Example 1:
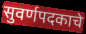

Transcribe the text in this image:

सुवर्णपदकाचे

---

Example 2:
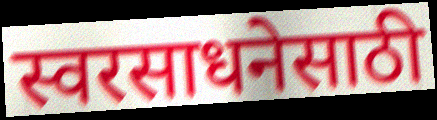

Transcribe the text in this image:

स्वरसाधनेसाठी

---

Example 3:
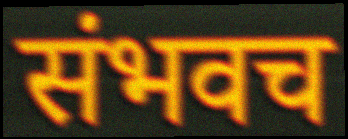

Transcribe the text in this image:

संभवच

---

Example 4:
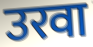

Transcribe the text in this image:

उरवा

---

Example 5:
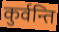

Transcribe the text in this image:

कुर्वन्ति